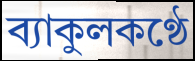
ব্যাকুলকণ্ঠে